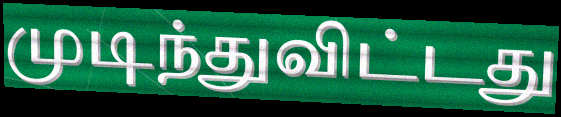
முடிந்துவிட்டது